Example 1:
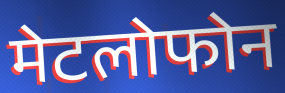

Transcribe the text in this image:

मेटलोफोन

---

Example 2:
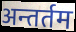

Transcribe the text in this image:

अन्तर्तम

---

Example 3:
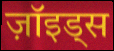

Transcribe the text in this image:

ज़ॉइड्स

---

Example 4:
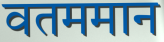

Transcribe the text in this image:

वतममान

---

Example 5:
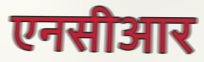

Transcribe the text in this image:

एनसीआर